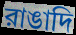
রাঙাদি